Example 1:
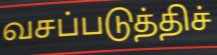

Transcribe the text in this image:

வசப்படுத்திச்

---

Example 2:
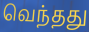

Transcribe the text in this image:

வெந்தது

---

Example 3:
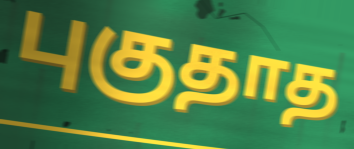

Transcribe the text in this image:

புகுதாத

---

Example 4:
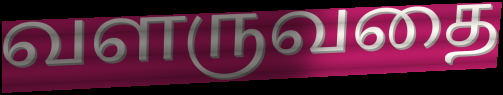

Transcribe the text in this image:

வளருவதை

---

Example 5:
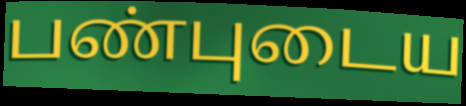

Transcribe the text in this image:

பண்புடைய